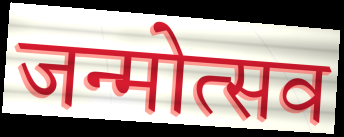
जन्मोत्सव